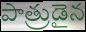
పాత్రుడైన